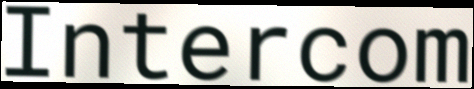
Intercom